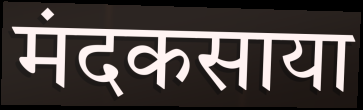
मंदकसाया